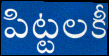
పిట్టలకీ